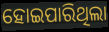
ହୋଇପାରିଥିଲା